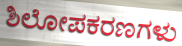
ಶಿಲೋಪಕರಣಗಳು